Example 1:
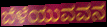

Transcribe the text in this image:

ಬೆಳೆಯುವವನ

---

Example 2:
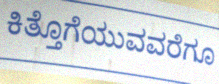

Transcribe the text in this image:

ಕಿತ್ತೊಗೆಯುವವರೆಗೂ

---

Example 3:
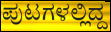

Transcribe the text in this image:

ಪುಟಗಳಲ್ಲಿದ್ದ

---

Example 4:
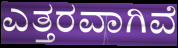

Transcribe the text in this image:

ಎತ್ತರವಾಗಿವೆ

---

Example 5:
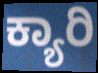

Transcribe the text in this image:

ಕ್ಯಾರಿ